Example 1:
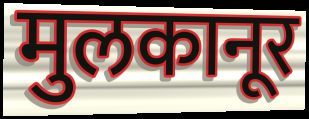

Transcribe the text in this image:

मुलकानूर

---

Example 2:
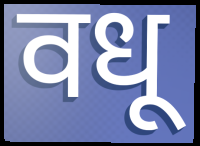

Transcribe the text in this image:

वधू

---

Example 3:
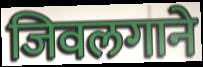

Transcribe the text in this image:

जिवलगाने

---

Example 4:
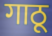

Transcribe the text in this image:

गाठू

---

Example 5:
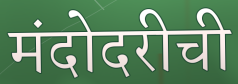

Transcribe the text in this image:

मंदोदरीची